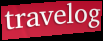
travelog